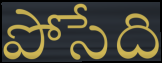
పోసేది